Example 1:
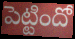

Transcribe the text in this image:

పెట్టిందో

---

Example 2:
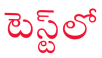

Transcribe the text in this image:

టెస్ట్‌లో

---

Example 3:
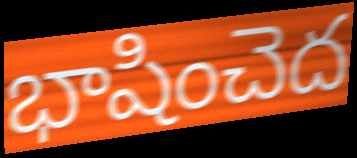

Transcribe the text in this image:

భాషించెద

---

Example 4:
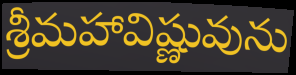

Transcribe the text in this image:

శ్రీమహావిష్ణువును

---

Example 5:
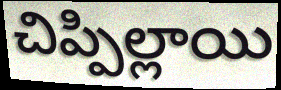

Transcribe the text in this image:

చిప్పిల్లాయి